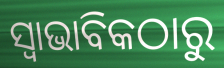
ସ୍ୱାଭାବିକଠାରୁ